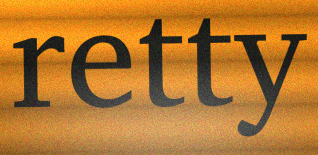
retty